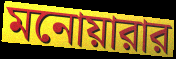
মনোয়ারার